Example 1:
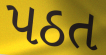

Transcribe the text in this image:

પઠત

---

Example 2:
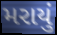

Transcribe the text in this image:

મરાયું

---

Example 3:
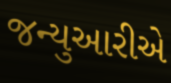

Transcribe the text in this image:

જન્યુઆરીએ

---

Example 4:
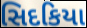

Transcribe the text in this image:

સિદકિયા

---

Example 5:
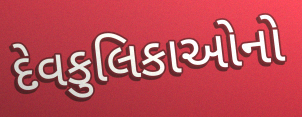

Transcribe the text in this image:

દેવકુલિકાઓનો